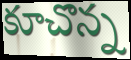
కూచొన్న